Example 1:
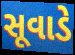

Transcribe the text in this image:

સૂવાડે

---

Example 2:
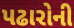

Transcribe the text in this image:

પઢારોની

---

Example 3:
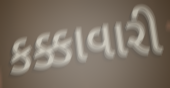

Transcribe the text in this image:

કક્કાવારી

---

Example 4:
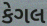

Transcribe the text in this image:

કેગલ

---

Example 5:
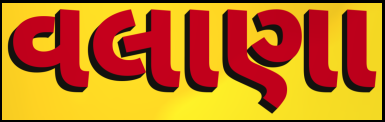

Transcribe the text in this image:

વલાણા